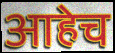
आहेच